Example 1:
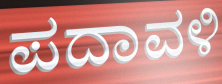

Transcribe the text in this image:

ಪದಾವಳಿ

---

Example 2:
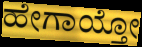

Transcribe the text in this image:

ಹೇಗಾಯ್ತೋ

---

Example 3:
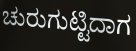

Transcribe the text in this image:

ಚುರುಗುಟ್ಟಿದಾಗ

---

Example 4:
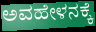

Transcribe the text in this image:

ಅವಹೇಳನಕ್ಕೆ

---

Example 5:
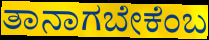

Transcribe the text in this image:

ತಾನಾಗಬೇಕೆಂಬ